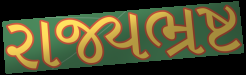
રાજ્યભ્રષ્ટ